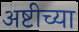
अष्टीच्या